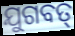
ଯୁଗବତ୍